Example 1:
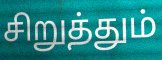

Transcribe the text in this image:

சிறுத்தும்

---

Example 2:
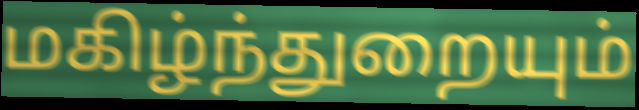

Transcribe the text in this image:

மகிழ்ந்துறையும்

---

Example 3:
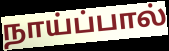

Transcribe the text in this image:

நாய்ப்பால்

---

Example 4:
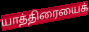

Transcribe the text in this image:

யாத்திரையைக்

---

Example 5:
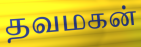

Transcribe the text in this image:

தவமகன்